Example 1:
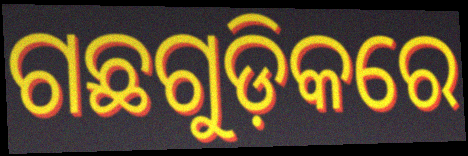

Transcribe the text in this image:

ଗଛଗୁଡ଼ିକରେ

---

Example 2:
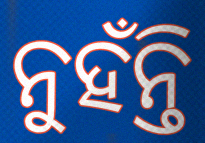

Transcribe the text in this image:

ନୁହଁନ୍ତି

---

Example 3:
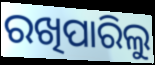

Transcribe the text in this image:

ରଖିପାରିଲୁ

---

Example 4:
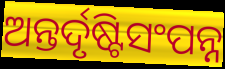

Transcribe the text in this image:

ଅନ୍ତର୍ଦୃଷ୍ଟିସଂପନ୍ନ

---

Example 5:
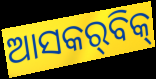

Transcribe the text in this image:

ଆସକର୍‌ବିକ୍